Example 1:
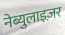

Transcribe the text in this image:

नेब्युलाइज़र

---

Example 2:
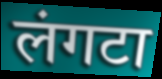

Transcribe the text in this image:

लंगटा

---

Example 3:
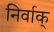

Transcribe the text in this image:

निर्वाक्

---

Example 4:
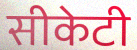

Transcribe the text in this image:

सीकेटी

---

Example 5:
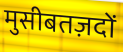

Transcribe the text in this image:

मुसीबतज़दों